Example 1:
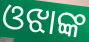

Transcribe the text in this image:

ଓଝାଙ୍କ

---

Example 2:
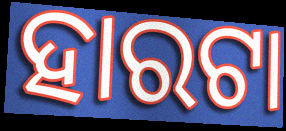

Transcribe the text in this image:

ହାରଟା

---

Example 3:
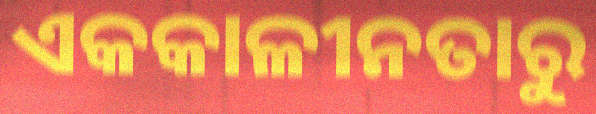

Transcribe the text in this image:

ଏକକାଳୀନତାରୁ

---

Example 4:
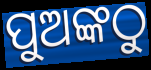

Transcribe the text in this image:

ପୁଅଙ୍କଠୁ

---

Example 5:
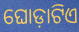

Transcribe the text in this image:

ଘୋଡ଼ାଟିଏ